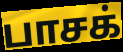
பாசக்